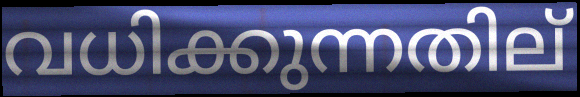
വധിക്കുന്നതില്